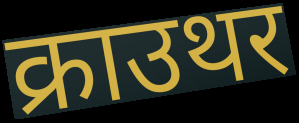
क्राउथर